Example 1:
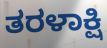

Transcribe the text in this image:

ತರಳಾಕ್ಷಿ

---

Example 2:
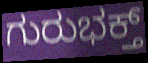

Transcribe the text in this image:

ಗುರುಭಕ್ತ್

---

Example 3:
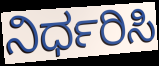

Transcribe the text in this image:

ನಿರ್ಧರಿಸಿ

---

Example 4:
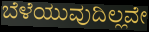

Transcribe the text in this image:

ಬೆಳೆಯುವುದಿಲ್ಲವೇ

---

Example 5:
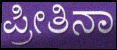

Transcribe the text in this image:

ಪ್ರೀತಿನಾ